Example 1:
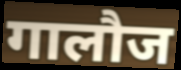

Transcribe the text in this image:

गालौज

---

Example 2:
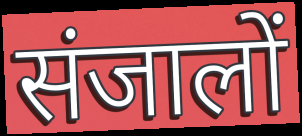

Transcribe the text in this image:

संजालों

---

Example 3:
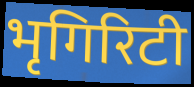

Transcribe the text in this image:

भृगिरिटी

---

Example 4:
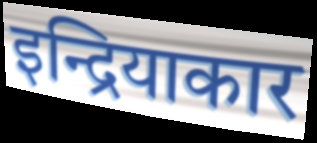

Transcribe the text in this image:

इन्द्रियाकार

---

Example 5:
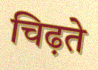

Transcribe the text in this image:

चिढ़ते